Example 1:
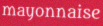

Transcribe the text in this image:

mayonnaise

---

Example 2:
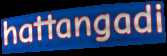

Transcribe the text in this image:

hattangadi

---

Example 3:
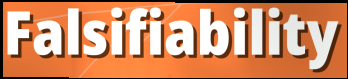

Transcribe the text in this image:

Falsifiability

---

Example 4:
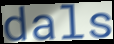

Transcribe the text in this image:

dals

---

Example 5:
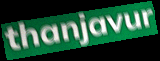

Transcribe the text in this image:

thanjavur